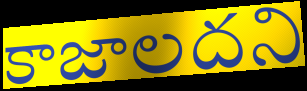
కాజాలదని